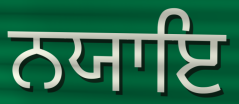
ਨਯਾਇ